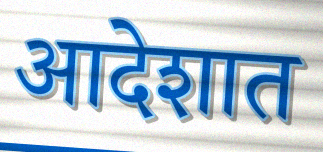
आदेशात